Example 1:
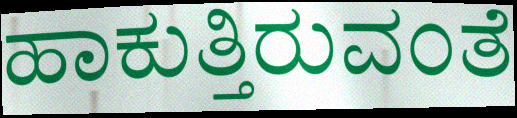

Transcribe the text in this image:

ಹಾಕುತ್ತಿರುವಂತೆ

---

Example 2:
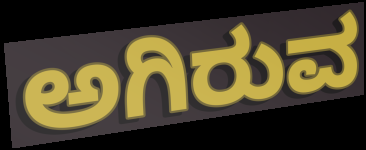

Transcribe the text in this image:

ಅಗಿರುವ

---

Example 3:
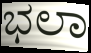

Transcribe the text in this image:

ಭಲಾ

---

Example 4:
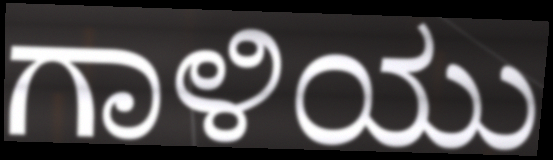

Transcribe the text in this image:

ಗಾಳಿಯು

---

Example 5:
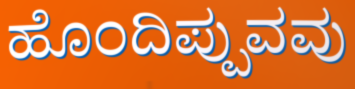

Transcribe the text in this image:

ಹೊಂದಿಪ್ಪುವವು